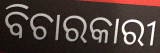
ବିଚାରକାରୀ